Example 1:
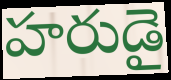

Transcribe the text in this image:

హరుడై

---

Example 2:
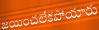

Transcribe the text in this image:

జయించలేకపోయారు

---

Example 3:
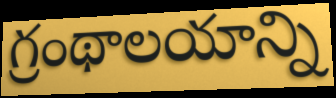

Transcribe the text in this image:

గ్రంథాలయాన్ని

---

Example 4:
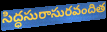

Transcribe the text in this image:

సిద్ధసురాసురవందిత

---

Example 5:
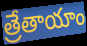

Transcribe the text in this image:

త్రేతాయాం